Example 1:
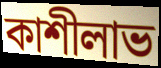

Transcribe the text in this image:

কাশীলাভ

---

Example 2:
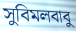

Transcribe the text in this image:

সুবিমলবাবু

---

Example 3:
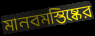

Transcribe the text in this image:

মানবমস্তিষ্কের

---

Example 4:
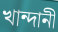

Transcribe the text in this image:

খান্দানী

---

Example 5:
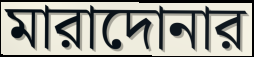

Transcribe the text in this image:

মারাদোনার